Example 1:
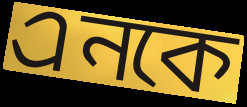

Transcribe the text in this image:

এনকে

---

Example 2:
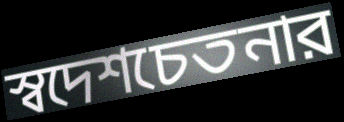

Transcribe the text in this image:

স্বদেশচেতনার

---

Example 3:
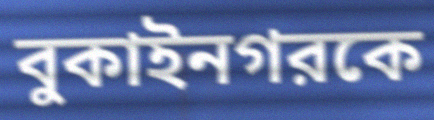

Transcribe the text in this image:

বুকাইনগরকে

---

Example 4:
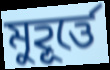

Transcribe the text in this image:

মুহূর্ত্তে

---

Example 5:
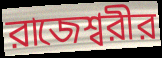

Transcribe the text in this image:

রাজেশ্বরীর